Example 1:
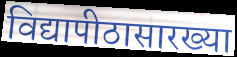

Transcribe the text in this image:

विद्यापीठासारख्या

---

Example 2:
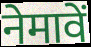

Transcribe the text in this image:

नेमावें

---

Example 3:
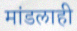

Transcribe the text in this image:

मांडलाही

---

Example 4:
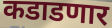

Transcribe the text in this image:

कडाडणार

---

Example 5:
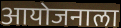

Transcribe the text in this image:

आयोजनाला